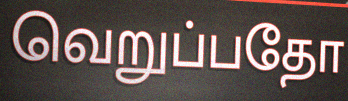
வெறுப்பதோ